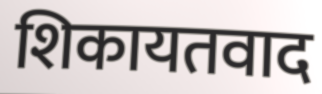
शिकायतवाद